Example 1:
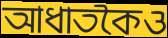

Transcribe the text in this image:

আধাতকৈও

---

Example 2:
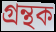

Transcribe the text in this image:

গ্ৰন্থক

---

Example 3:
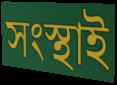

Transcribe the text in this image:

সংস্থাই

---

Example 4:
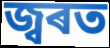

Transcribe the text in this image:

জ্বৰত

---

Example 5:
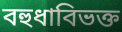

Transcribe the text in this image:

বহুধাবিভক্ত